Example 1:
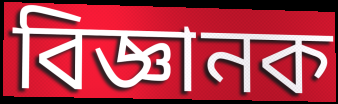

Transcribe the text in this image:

বিজ্ঞানক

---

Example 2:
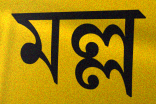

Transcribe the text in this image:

মল্ল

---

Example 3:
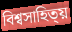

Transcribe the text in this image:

বিশ্বসাহিত্য়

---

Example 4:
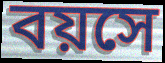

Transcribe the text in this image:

বয়সে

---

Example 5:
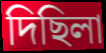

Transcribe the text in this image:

দিছিলা